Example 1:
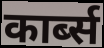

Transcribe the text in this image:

कार्ब्स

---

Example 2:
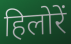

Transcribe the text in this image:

हिलोरें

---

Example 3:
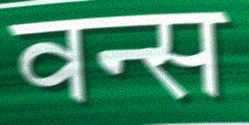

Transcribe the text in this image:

वन्स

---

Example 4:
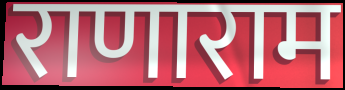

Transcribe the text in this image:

राणाराम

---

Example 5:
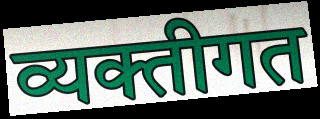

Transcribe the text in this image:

व्यक्तीगत